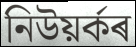
নিউয়ৰ্কৰ